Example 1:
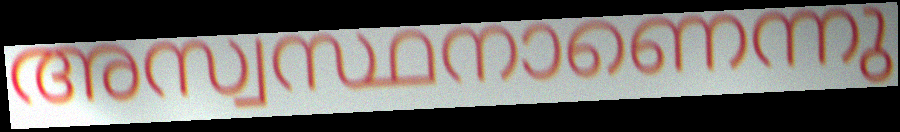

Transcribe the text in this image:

അസ്വസ്ഥനാണെന്നു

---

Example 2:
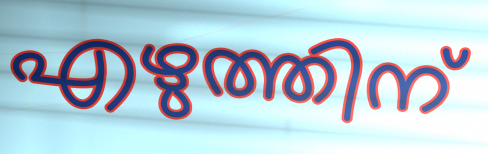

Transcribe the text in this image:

എഴുത്തിന്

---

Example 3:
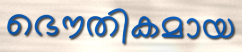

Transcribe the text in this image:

ഭൌതികമായ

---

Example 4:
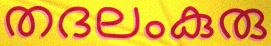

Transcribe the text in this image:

തദലംകുരു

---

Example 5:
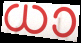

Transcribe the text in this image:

ധാ